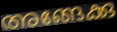
അങ്ങേക്കു